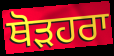
ਥੋੜਹਰਾ